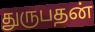
துருபதன்